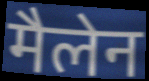
मैलेन